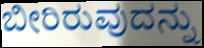
ಬೀರಿರುವುದನ್ನು